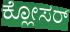
ಕ್ಲೋಸರ್